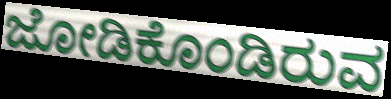
ಜೋಡಿಕೊಂಡಿರುವ